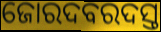
ଜୋରଦବରଦସ୍ତ